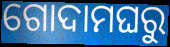
ଗୋଦାମଘରୁ